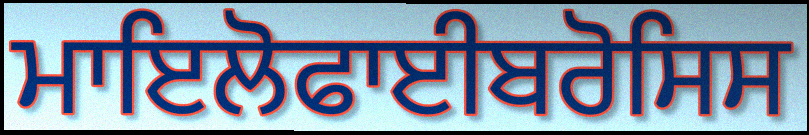
ਮਾਇਲੋਫਾਈਬਰੋਸਿਸ